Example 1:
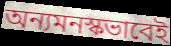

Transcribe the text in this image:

অন্যমনস্কভাবেই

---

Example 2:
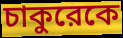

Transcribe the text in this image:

চাকুরেকে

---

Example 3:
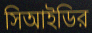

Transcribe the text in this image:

সিআইডির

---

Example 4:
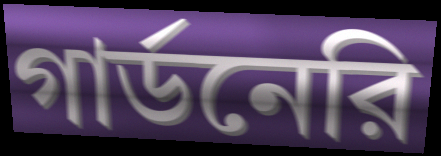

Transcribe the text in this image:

গার্ডনেরি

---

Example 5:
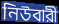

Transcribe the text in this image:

নিউবারী